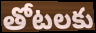
తోటలకు